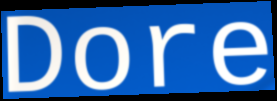
Dore